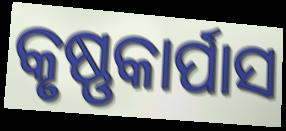
କୃଷ୍ଣକାର୍ପାସ